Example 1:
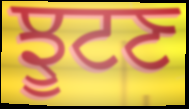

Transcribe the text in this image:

ਝੂਟਣ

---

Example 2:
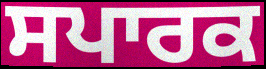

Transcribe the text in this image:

ਸਪਾਰਕ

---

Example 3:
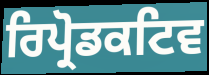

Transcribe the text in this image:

ਰਿਪ੍ਰੋਡਕਟਿਵ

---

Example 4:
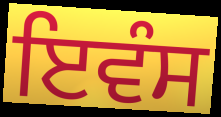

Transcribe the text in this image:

ਇਵੰਸ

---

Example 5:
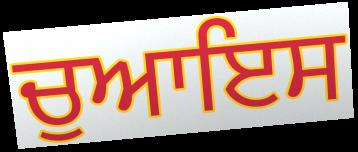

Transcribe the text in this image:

ਚੁਆਇਸ